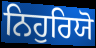
ਨਿਹੁਰਿਯੋ